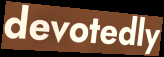
devotedly